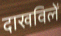
दाखविलें